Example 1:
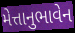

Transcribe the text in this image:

મેત્તાનુભાવેન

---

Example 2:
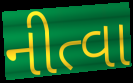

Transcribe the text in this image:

નીત્વા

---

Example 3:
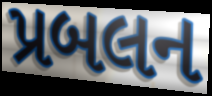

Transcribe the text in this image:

પ્રબલન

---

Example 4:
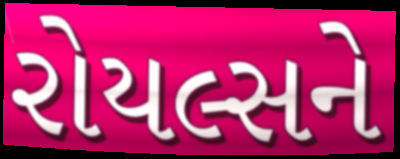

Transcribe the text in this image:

રોયલ્સને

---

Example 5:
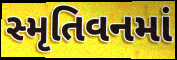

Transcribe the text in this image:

સ્મૃતિવનમાં